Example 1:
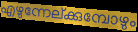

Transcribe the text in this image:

എഴുന്നേല്ക്കുമ്പോഴും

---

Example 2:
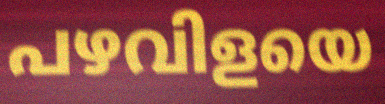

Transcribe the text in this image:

പഴവിളയെ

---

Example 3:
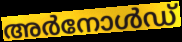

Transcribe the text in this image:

അർനോൾഡ്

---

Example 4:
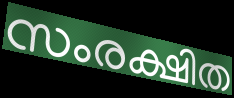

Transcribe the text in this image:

സംരക്ഷിത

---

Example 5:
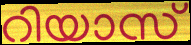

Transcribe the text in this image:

റിയാസ്